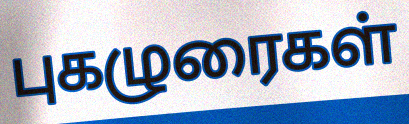
புகழுரைகள்